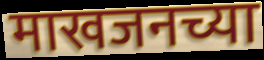
माखजनच्या